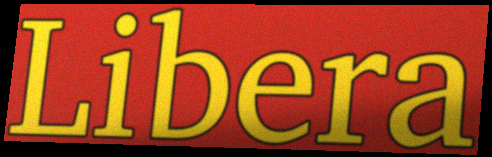
Libera